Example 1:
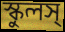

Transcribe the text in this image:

স্কুলস্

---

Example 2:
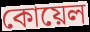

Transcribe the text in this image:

কোয়েল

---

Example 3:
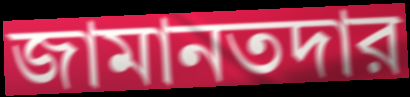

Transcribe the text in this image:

জামানতদার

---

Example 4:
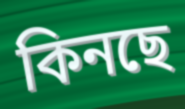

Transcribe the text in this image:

কিনছে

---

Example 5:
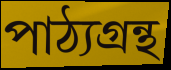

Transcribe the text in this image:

পাঠ্যগ্রন্থ